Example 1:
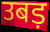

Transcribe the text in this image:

उबड़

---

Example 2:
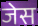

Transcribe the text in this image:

जेस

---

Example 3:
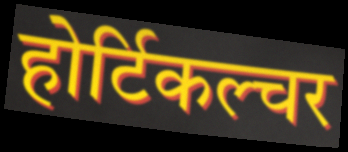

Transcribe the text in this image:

होर्टिकल्चर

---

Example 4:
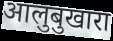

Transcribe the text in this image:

आलुबुखारा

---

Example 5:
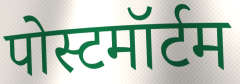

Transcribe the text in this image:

पोस्टमॉर्टम